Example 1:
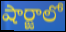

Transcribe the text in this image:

షార్జాలో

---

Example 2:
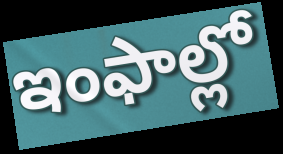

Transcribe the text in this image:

ఇంఫాల్లో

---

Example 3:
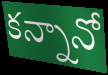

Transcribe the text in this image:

కన్నానో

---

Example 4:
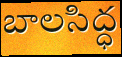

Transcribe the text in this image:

బాలసిద్ధ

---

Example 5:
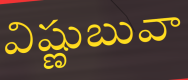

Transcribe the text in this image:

విష్ణుబువా